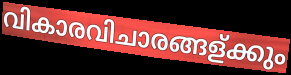
വികാരവിചാരങ്ങള്ക്കും